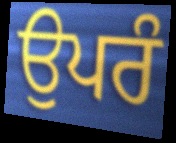
ਉਪਰੰ